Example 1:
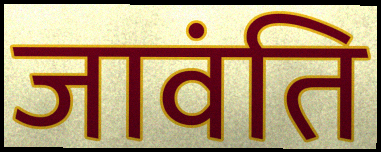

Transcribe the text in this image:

जावंति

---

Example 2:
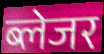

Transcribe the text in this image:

ब्लेजर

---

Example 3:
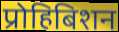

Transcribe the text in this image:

प्रोहिबिशन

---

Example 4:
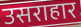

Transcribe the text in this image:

उसराहार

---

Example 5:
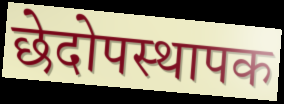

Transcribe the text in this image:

छेदोपस्थापक